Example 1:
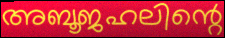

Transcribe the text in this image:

അബൂജഹലിന്റെ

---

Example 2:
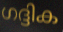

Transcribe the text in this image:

ഗദ്ദിക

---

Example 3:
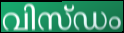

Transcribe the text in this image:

വിസ്ഡം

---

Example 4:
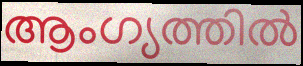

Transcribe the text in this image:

ആംഗ്യത്തിൽ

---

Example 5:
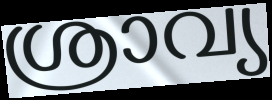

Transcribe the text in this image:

ശ്രാവ്യ